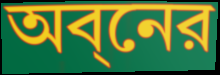
অব্নের